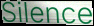
Silence